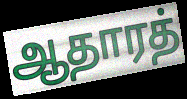
ஆதாரத்